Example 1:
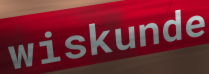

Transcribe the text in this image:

wiskunde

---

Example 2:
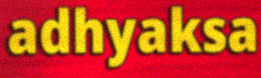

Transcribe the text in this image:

adhyaksa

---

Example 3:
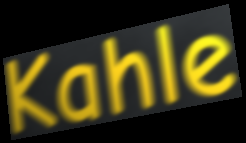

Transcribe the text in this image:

Kahle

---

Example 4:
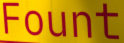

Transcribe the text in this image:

Fount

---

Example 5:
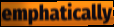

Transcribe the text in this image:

emphatically